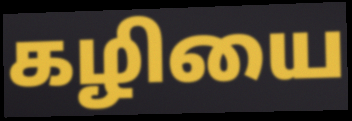
கழியை